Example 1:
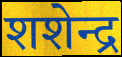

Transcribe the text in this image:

शशेन्द्र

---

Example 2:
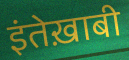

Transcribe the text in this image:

इंतेख़ाबी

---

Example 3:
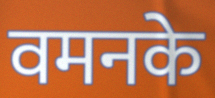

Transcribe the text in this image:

वमनके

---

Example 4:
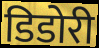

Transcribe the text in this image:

डिडोरी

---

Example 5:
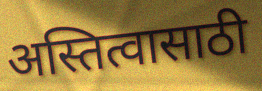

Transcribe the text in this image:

अस्तित्वासाठी